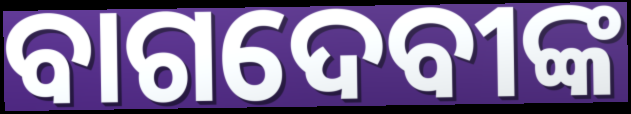
ବାଗଦେବୀଙ୍କ